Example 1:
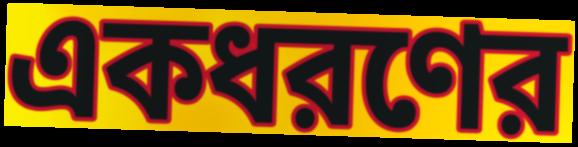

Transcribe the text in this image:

একধরণের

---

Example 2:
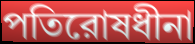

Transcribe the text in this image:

পতিরোষধীনা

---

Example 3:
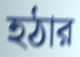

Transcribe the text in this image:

হঠার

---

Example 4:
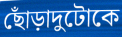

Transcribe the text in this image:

ছোঁড়াদুটোকে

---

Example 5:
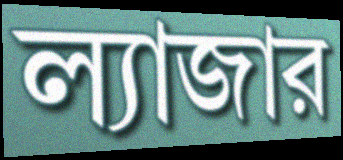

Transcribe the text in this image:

ল্যাজার